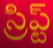
స్రిప్ట్